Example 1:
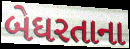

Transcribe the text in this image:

બેઘરતાના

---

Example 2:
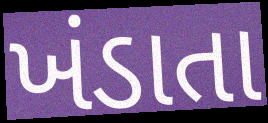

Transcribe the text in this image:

ખંડાતા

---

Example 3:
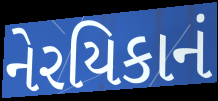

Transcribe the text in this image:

નેરયિકાનં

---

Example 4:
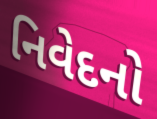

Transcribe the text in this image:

નિવેદનો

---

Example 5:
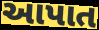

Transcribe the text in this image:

આપાત